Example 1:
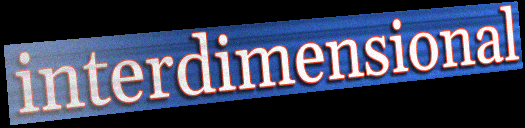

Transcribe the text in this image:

interdimensional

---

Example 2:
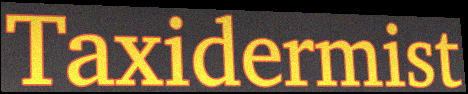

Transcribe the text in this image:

Taxidermist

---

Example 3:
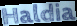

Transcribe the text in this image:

Haldia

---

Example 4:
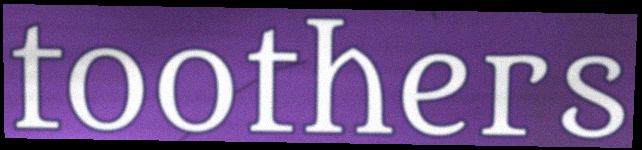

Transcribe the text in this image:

toothers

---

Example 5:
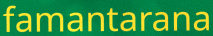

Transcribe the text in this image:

famantarana